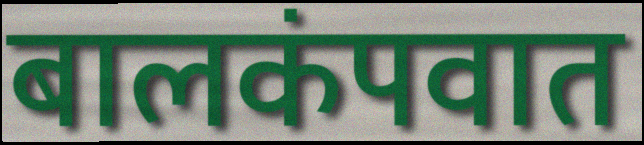
बालकंपवात